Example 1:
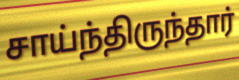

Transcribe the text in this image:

சாய்ந்திருந்தார்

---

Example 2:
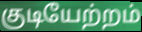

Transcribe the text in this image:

குடியேற்றம்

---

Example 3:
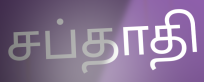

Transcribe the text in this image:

சப்தாதி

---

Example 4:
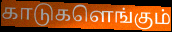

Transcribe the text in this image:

காடுகளெங்கும்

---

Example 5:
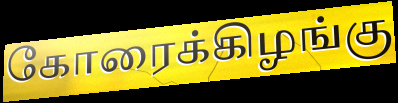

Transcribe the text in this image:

கோரைக்கிழங்கு